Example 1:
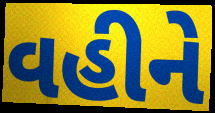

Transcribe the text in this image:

વહીને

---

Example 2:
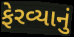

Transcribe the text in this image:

ફેરવ્યાનું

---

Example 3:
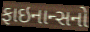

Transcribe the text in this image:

ફાઇનાન્સનો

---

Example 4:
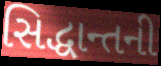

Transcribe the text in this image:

સિદ્ધાન્તની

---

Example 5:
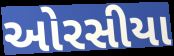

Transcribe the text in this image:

ઓરસીયા